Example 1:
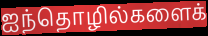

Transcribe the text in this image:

ஐந்தொழில்களைக்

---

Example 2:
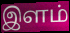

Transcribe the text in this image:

இளம்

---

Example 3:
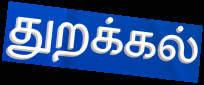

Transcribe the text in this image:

துறக்கல்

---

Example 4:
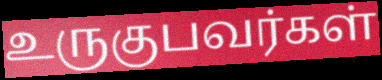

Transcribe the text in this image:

உருகுபவர்கள்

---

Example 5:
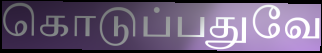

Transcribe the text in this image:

கொடுப்பதுவே